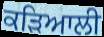
ਕੜਿਆਲੀ